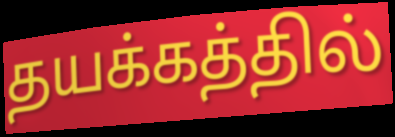
தயக்கத்தில்